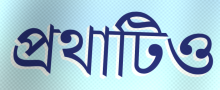
প্রথাটিও